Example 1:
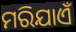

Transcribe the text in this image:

ମରିଯାଏଁ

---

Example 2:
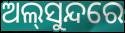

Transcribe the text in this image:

ଅଲ୍‌ସୁନ୍ଦରେ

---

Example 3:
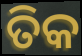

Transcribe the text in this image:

ତିକ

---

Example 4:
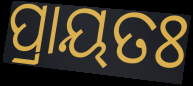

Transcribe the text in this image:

ପ୍ରାୟତଃ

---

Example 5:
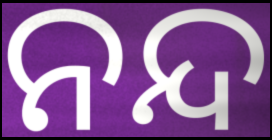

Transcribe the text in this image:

ନନ୍ଦ